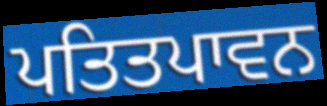
ਪਤਿਤਪਾਵਨ